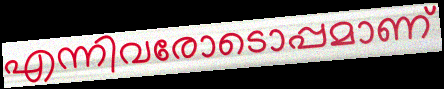
എന്നിവരോടൊപ്പമാണ്